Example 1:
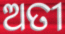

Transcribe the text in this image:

ଅତୀ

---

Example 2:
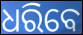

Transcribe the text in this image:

ଧରିବେ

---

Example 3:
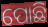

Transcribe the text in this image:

ପୋଛି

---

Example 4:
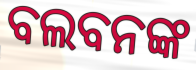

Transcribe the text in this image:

ବଲବନଙ୍କ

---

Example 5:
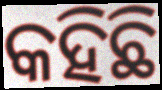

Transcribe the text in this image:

କହିଛି